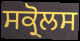
ਸਕ੍ਰੋਲਸ